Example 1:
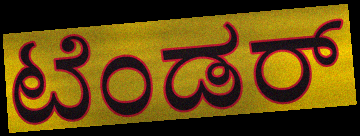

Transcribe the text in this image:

ಟೆಂಡರ್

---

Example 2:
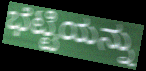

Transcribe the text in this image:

ಭೆಟ್ಟಿಯನ್ನು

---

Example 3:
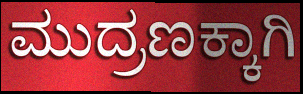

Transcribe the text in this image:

ಮುದ್ರಣಕ್ಕಾಗಿ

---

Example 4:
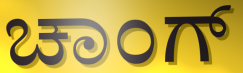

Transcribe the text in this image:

ಚಾಂಗ್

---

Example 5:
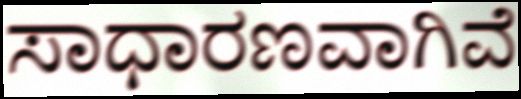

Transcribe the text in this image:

ಸಾಧಾರಣವಾಗಿವೆ